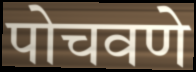
पोचवणे